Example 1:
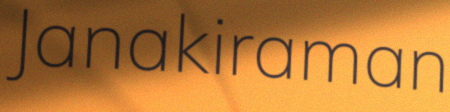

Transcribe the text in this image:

Janakiraman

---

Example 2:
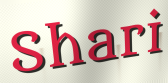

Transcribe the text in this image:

Shari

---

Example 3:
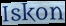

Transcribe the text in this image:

Iskon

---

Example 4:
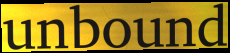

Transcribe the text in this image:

unbound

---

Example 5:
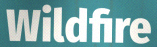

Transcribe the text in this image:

Wildfire